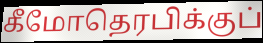
கீமோதெரபிக்குப்